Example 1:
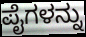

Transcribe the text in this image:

ಪೈಗಳನ್ನು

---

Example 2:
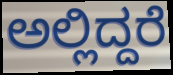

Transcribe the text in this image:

ಅಲ್ಲಿದ್ದರೆ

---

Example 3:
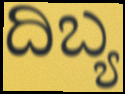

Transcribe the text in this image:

ದಿಬ್ಯ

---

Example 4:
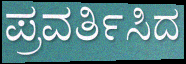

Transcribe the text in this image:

ಪ್ರವರ್ತಿಸಿದ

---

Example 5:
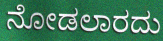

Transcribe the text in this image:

ನೋಡಲಾರದು